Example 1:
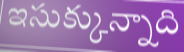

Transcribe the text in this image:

ఇసుక్కున్నాది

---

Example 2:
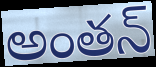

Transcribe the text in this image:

అంతన్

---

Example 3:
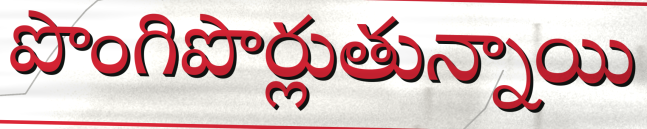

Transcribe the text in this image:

పొంగిపొర్లుతున్నాయి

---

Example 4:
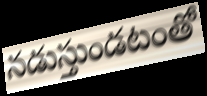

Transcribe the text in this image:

నడుస్తుండటంతో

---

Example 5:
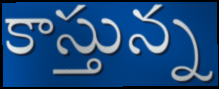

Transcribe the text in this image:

కాస్తున్న